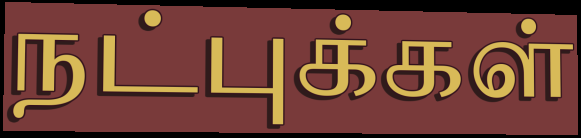
நட்புக்கள்